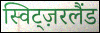
स्विट्ज़रलैंड